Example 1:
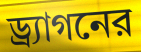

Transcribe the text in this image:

ড্র্যাগনের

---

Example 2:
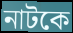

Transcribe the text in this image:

নাটকে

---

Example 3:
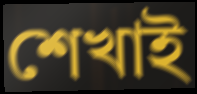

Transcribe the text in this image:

শেখাই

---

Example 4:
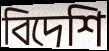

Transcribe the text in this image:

বিদেশি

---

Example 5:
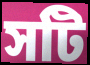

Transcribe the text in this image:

সটি